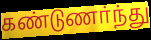
கண்டுணர்ந்து